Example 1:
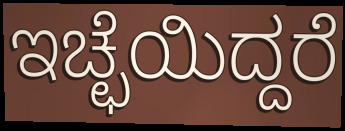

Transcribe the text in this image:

ಇಚ್ಛೆಯಿದ್ದರೆ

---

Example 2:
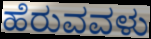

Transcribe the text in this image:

ಹೆರುವವಳು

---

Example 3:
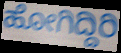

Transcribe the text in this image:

ಹೋಗಿದ್ದಿರಿ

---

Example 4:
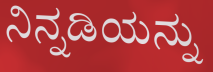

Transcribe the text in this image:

ನಿನ್ನಡಿಯನ್ನು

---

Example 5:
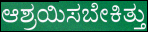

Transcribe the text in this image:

ಆಶ್ರಯಿಸಬೇಕಿತ್ತು